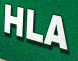
HLA